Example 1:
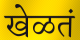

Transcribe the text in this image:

खेळतं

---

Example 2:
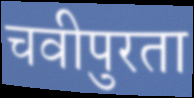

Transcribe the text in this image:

चवीपुरता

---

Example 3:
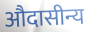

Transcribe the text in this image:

औदासीन्य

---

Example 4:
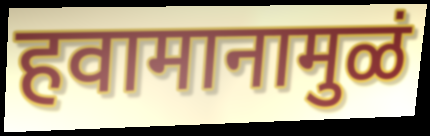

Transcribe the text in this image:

हवामानामुळं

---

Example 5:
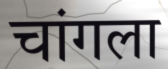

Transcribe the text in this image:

चांगला